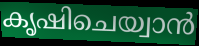
കൃഷിചെയ്വാൻ